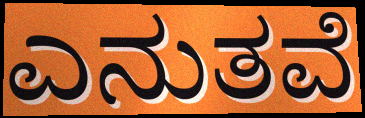
ಎನುತವೆ